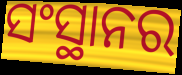
ସଂସ୍ଥାନର